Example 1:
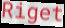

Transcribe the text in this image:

Riget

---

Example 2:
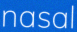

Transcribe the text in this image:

nasal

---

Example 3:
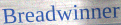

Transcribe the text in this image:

Breadwinner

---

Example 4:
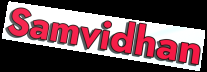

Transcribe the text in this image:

Samvidhan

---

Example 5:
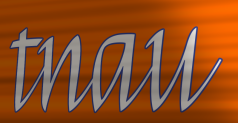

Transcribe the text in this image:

tnau